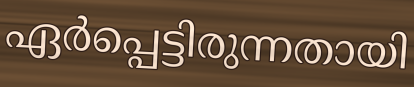
ഏർപ്പെട്ടിരുന്നതായി